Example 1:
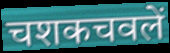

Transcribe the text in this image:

चशकचवलें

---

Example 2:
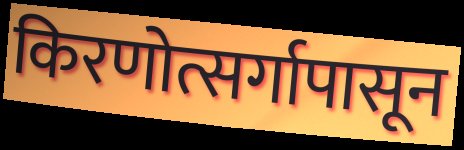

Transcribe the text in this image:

किरणोत्सर्गापासून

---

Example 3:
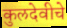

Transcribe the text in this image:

कुलदेवीचे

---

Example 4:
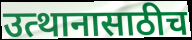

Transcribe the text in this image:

उत्थानासाठीच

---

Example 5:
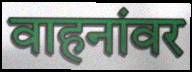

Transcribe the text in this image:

वाहनांवर